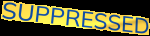
SUPPRESSED